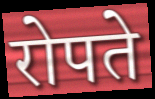
रोपते